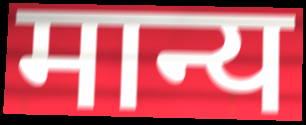
मान्य